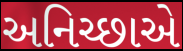
અનિચ્છાએ